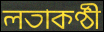
লতাকণ্ঠী